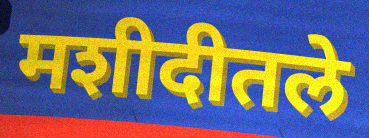
मशीदीतले